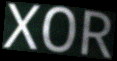
XOR